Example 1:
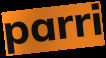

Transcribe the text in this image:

parri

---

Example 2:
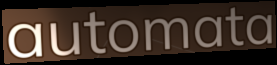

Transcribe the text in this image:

automata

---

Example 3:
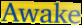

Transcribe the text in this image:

Awake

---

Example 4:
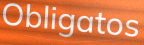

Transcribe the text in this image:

Obligatos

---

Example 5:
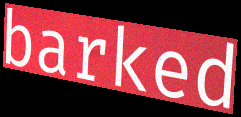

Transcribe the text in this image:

barked